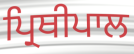
ਪ੍ਰਿਥੀਪਾਲ